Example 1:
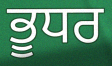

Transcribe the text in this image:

ਭੂਧਰ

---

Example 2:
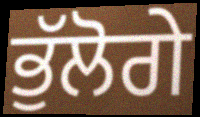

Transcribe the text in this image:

ਭੁੱਲੋਗੇ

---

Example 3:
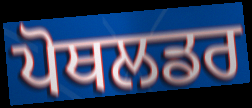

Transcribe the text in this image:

ਪੋਥਲਡਰ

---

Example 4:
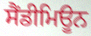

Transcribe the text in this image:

ਸੈਂਡੀਮਿਊਨ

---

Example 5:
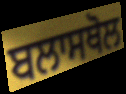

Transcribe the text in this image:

ਬਲਾਸਥੋਲ